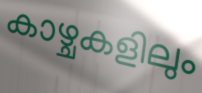
കാഴ്ചകളിലും